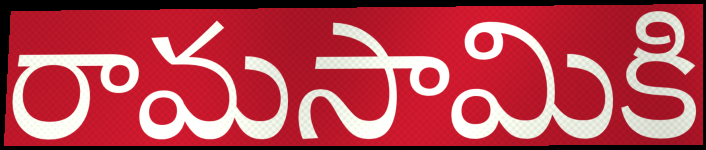
రామసామికి